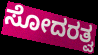
ಸೋದರತ್ವ